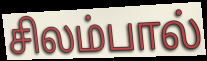
சிலம்பால்